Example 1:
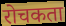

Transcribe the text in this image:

रोचकता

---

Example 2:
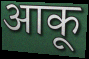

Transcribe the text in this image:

आकू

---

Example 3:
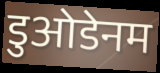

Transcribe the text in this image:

डुओडेनम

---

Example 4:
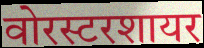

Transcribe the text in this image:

वोरस्टरशायर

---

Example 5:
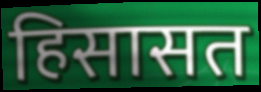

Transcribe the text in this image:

हिसासत